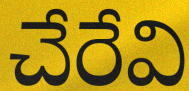
చేరేవి